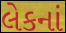
લેકનાં